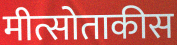
मीत्सोताकीस